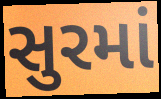
સુરમાં